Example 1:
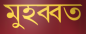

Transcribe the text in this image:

মুহব্বত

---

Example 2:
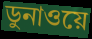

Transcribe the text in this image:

ডুনাওয়ে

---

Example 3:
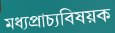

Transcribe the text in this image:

মধ্যপ্রাচ্যবিষয়ক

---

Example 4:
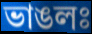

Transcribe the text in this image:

ভাঙলঃ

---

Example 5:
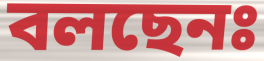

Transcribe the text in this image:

বলছেনঃ